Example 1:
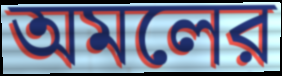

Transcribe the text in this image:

অমলের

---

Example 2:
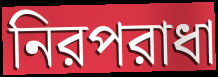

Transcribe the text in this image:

নিরপরাধা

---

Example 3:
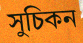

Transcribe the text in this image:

সুচিকন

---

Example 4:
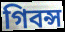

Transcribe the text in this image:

গিবন্স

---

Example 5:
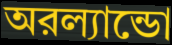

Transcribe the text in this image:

অরল্যান্ডো